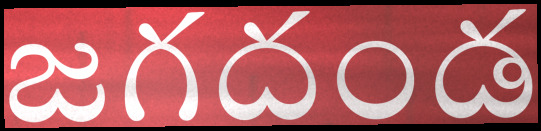
జగదండ